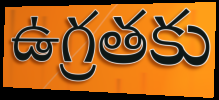
ఉగ్రతకు